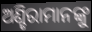
ଅଣ୍ଡିରାମାନଙ୍କୁ